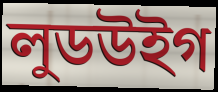
লুডউইগ